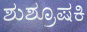
ಶುಶ್ರೂಷಕಿ